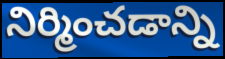
నిర్మించడాన్ని